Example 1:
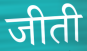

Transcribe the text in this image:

जीती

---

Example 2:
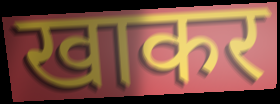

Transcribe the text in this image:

खाकर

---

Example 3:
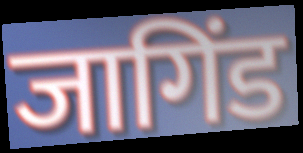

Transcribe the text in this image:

जागिंड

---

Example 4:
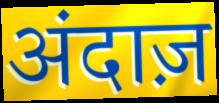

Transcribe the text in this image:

अंदाज़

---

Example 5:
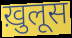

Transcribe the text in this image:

ख़ुलूस